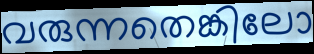
വരുന്നതെങ്കിലോ